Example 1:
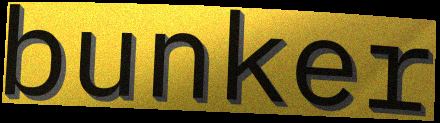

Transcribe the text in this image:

bunker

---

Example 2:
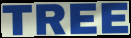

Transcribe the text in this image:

TREE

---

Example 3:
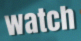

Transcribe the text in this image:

watch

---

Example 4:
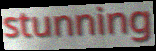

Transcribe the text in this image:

stunning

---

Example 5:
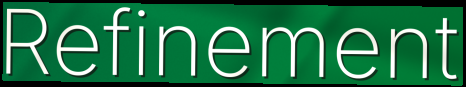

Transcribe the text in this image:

Refinement